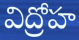
విద్రోహ